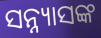
ସନ୍ନ୍ୟାସଙ୍କ